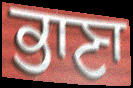
ਭਾਣਾ